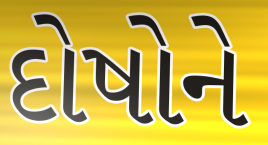
દોષોને